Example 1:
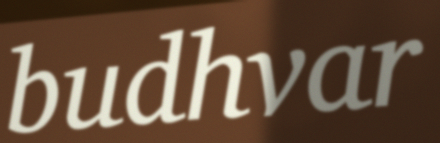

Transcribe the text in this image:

budhvar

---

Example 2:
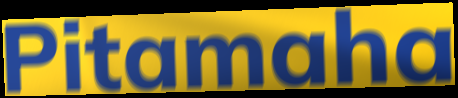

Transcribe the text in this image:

Pitamaha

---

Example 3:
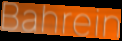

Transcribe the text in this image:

Bahrein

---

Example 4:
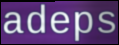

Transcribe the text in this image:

adeps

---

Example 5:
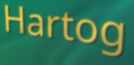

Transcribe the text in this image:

Hartog